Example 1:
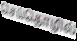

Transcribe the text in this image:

செய்தொழில்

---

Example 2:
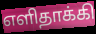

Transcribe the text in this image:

எளிதாக்கி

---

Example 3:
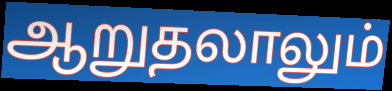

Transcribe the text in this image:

ஆறுதலாலும்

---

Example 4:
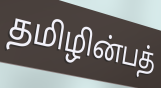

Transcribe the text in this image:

தமிழின்பத்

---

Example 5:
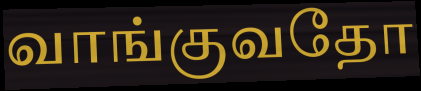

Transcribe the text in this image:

வாங்குவதோ